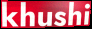
khushi